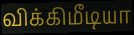
விக்கிமீடியா